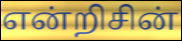
என்றிசின்